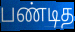
பண்டித